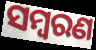
ସମ୍ୱରଣ